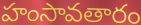
హంసావతారం